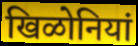
खिळोनियां